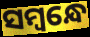
ସମ୍ବନ୍ଧେ